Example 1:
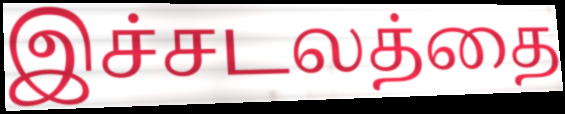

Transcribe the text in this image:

இச்சடலத்தை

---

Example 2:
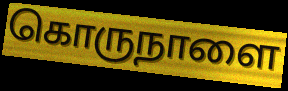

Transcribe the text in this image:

கொருநாளை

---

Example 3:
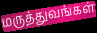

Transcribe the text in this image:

மருத்துவங்கள்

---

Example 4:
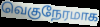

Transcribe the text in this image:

வெகுநேரமாக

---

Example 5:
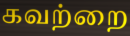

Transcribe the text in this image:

கவற்றை